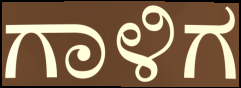
ಗಾಳಿಗ